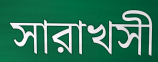
সারাখসী